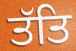
ਤੱਤਿ